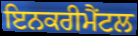
ਇਨਕਰੀਮੈਂਟਲ